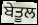
ਬੇਤੂਲ